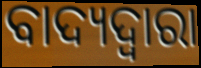
ବାଦ୍ୟଦ୍ୱାରା